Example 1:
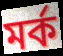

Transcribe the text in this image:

মর্ক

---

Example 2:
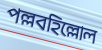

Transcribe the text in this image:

পল্লবহিল্লোল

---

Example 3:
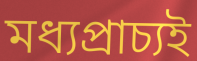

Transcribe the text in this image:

মধ্যপ্রাচ্যই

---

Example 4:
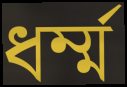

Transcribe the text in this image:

ধর্ম্ম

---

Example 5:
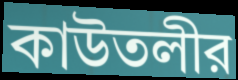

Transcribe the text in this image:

কাউতলীর